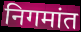
निगमांत